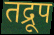
तद्रूप